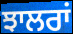
ਝਾਲਰਾਂ